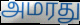
அமரது